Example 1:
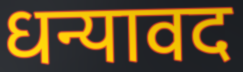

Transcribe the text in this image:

धन्यावद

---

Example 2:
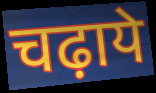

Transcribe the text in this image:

चढ़ाये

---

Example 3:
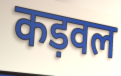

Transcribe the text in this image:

कड़वल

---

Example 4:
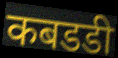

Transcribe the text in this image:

कबडडी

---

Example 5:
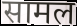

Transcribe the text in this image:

सामल